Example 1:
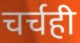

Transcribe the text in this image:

चर्चही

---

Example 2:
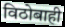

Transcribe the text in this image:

विठोबाही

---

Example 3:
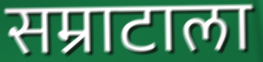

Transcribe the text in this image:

सम्राटाला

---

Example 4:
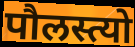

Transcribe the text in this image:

पौलस्त्यो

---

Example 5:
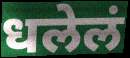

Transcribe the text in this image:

धलेलं